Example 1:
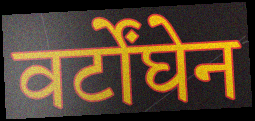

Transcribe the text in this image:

वर्टोंघेन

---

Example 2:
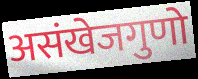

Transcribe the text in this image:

असंखेजगुणो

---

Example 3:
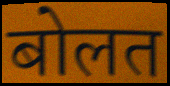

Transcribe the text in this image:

बोलत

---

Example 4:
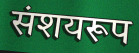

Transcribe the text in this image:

संशयरूप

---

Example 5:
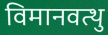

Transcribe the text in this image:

विमानवत्थु